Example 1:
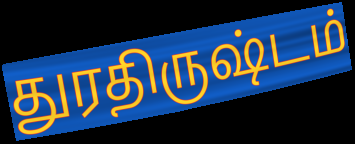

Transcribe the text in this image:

துரதிருஷ்டம்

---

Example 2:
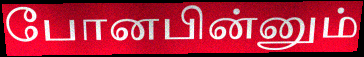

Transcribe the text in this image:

போனபின்னும்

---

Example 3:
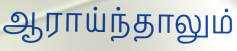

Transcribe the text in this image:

ஆராய்ந்தாலும்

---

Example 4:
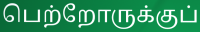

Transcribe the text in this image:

பெற்றோருக்குப்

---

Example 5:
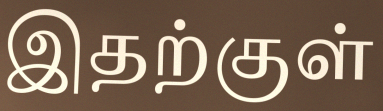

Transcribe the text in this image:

இதற்குள்